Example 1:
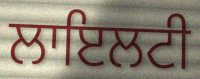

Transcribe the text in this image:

ਲਾਇਲਟੀ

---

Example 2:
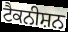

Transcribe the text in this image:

ਟੈਕਨੀਸ਼ਨ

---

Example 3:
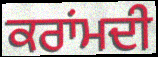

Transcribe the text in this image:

ਕਰਾਂਮਦੀ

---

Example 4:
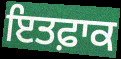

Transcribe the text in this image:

ਇਤਫ਼ਾਕ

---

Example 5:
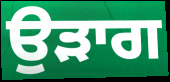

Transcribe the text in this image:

ਉੜਾਗ